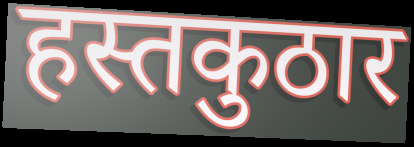
हस्तकुठार